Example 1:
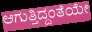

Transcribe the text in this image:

ಆಗುತ್ತಿದ್ದಂತೆಯೇ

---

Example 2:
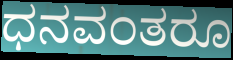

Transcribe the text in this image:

ಧನವಂತರೂ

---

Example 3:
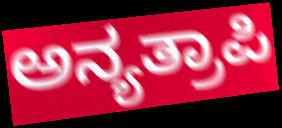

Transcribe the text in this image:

ಅನ್ಯತ್ರಾಪಿ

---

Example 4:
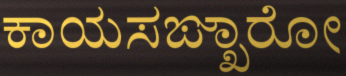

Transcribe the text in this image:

ಕಾಯಸಙ್ಖಾರೋ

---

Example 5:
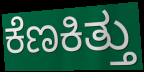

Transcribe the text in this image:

ಕೆಣಕಿತ್ತು